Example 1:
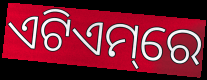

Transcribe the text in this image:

ଏଟିଏମ୍‌ରେ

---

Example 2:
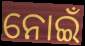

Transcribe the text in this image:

ନୋଇଁ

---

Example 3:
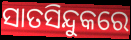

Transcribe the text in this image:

ସାତସିନ୍ଦୁକରେ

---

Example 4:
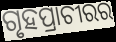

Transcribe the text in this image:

ଗୃହପ୍ରାଚୀରର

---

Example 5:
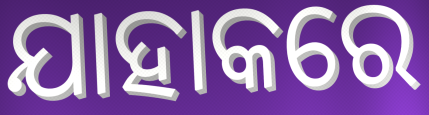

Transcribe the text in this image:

ଯାହାକରେ